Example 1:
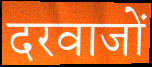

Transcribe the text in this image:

दरवाजों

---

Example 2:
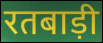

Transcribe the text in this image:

रतबाड़ी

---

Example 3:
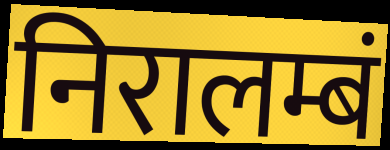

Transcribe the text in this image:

निरालम्बं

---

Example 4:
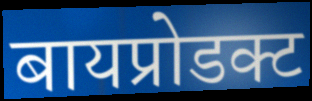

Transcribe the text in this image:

बायप्रोडक्ट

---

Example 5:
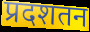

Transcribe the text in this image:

प्रदशतन